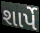
શાર્પે